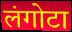
लंगोटा